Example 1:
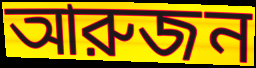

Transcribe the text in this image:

আৰুজন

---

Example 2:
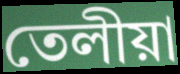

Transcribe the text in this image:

তেলীয়া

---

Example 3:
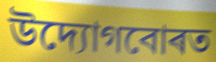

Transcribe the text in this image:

উদ্যোগবোৰত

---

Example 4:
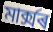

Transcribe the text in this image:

মাৰ্ক্সৰ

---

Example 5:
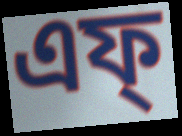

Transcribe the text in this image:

এফ্